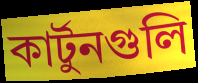
কার্টুনগুলি